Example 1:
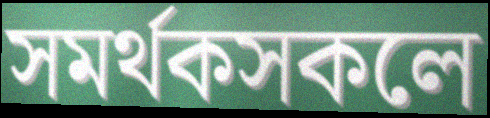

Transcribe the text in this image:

সমৰ্থকসকলে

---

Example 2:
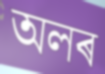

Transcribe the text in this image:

অলৰ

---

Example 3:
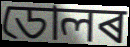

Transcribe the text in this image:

ডোলৰ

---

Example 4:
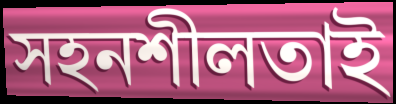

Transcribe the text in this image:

সহনশীলতাই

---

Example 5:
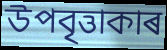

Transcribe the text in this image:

উপবৃত্তাকাৰ